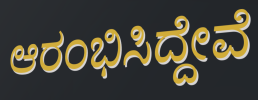
ಆರಂಭಿಸಿದ್ದೇವೆ